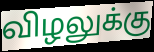
விழலுக்கு